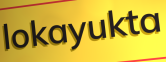
lokayukta